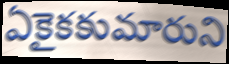
ఏకైకకుమారుని